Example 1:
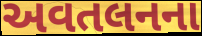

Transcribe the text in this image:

અવતલનના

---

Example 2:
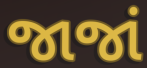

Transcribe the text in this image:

જાજાં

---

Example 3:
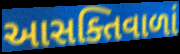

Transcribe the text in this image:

આસક્તિવાળાં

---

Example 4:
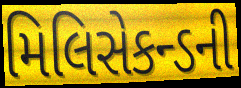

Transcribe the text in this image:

મિલિસેકન્ડની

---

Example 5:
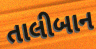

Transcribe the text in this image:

તાલીબાન